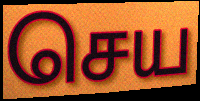
செய